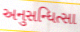
અનુસન્ધિત્સા